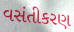
વસંતીકરણ